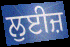
ਲੁਈਜ਼